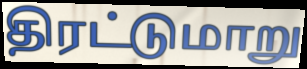
திரட்டுமாறு